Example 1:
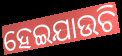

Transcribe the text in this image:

ହେଇଯାଉଚି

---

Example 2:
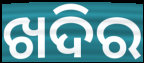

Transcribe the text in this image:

ଖଦିର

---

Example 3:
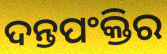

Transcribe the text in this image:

ଦନ୍ତପଂକ୍ତିର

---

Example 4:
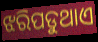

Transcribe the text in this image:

ଝରିପଡୁଥାଏ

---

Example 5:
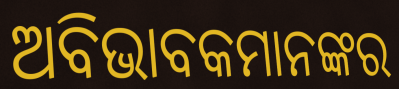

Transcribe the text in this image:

ଅବିଭାବକମାନଙ୍କର